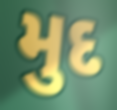
મુદ